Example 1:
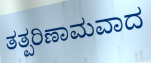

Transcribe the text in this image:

ತತ್ಪರಿಣಾಮವಾದ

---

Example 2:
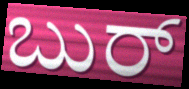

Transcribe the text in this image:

ಬುರ್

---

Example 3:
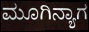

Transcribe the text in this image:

ಮೂಗಿನ್ಯಾಗ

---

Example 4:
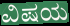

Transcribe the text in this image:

ವಿಷಯ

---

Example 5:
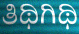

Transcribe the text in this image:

ತಿಥಿಗಿಥಿ